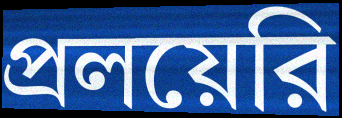
প্রলয়েরি